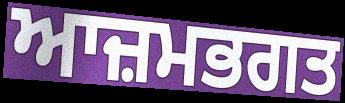
ਆਜ਼ਮਭਗਤ